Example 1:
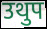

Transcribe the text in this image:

उथुप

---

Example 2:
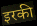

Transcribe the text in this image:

इरकी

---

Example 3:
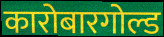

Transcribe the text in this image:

कारोबारगोल्ड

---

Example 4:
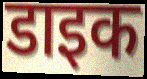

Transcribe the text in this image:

डाइक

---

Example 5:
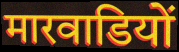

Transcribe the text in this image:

मारवाडियों